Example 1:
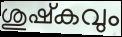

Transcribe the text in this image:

ശുഷ്കവും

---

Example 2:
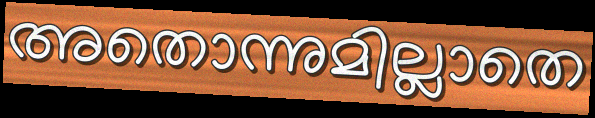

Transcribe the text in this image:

അതൊന്നുമില്ലാതെ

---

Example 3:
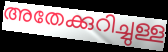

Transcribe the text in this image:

അതേക്കുറിച്ചുള്ള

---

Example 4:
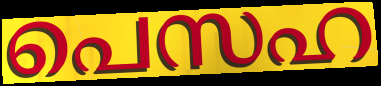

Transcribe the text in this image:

പെസഹ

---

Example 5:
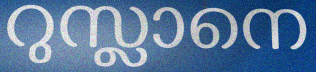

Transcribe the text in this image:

റുസ്ലാനെ